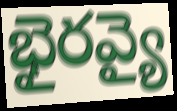
భైరవ్యై